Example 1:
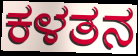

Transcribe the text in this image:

ಕಳತನ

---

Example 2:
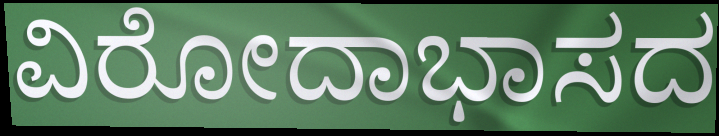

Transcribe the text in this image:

ವಿರೋದಾಭಾಸದ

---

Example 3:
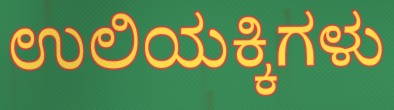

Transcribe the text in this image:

ಉಲಿಯಕ್ಕಿಗಳು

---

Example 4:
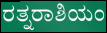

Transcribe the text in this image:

ರತ್ನರಾಶಿಯಂ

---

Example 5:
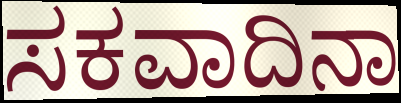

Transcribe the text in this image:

ಸಕವಾದಿನಾ